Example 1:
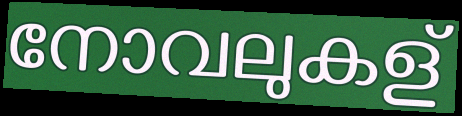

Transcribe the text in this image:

നോവലുകള്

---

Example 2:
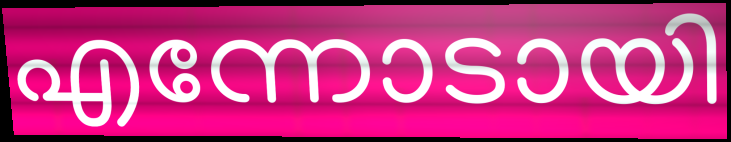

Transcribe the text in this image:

എന്നോടായി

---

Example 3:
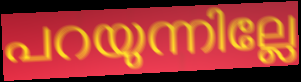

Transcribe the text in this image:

പറയുന്നില്ലേ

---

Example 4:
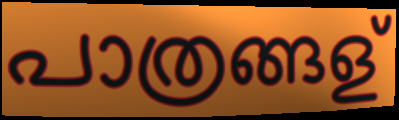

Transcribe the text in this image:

പാത്രങ്ങള്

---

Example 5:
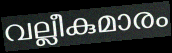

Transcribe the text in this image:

വല്ലീകുമാരം